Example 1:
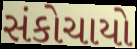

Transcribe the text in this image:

સંકોચાયો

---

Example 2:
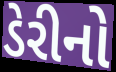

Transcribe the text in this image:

ડેરીનો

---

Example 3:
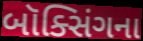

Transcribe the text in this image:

બૉક્સિંગના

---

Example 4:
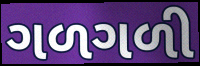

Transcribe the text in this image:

ગળગળી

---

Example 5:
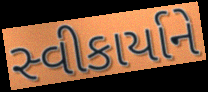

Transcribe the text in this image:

સ્વીકાર્યાને